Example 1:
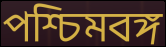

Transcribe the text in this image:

পশ্চিমবঙ্গ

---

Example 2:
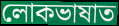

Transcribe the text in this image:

লোকভাষাত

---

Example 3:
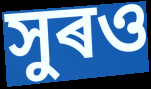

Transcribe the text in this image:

সুৰও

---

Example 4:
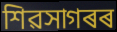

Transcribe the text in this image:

শিৱসাগৰৰ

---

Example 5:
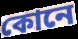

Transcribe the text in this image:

কোনে